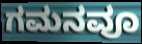
ಗಮನವೂ